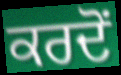
ਕਰਦੋਂ